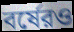
বর্ষেরও